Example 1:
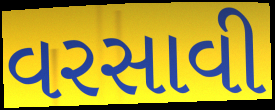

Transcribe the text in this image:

વરસાવી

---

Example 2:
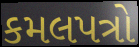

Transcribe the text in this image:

કમલપત્રો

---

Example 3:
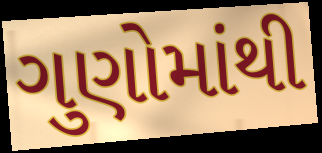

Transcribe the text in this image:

ગુણોમાંથી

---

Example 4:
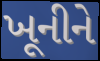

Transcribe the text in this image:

ખૂનીને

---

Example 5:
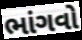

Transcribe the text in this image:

ભાંગવો